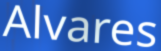
Alvares